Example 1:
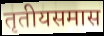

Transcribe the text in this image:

तृतीयसमास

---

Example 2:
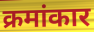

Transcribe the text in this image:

क्रमांकार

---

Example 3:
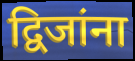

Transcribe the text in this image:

द्विजांना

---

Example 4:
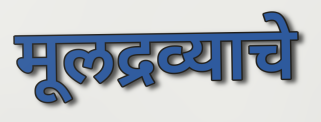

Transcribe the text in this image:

मूलद्रव्याचे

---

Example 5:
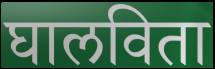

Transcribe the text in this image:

घालविता